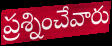
ప్రశ్నించేవారు